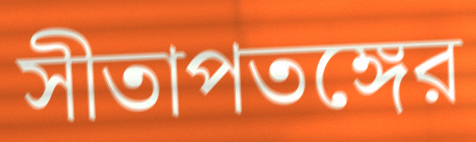
সীতাপতঙ্গের